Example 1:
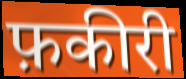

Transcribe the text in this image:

फ़कीरी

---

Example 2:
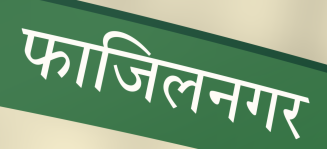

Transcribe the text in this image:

फाजिलनगर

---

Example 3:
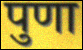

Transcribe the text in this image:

पुणा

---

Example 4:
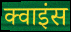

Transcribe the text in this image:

क्वाइंस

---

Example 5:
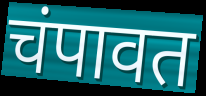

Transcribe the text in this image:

चंपावत